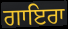
ਗਾਇਰਾ